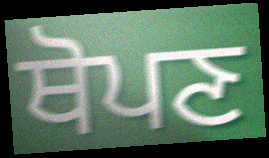
ਥੋਪਣ